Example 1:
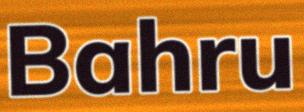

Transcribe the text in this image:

Bahru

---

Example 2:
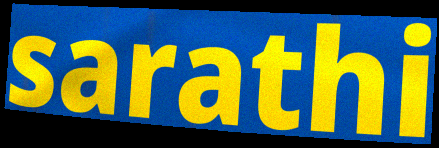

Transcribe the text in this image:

sarathi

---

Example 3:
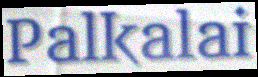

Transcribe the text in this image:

Palkalai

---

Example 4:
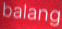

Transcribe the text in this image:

balang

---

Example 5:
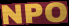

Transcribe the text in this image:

NPO